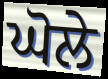
ਘੋਲੇ